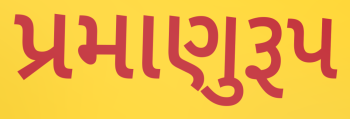
પ્રમાણુરૂપ